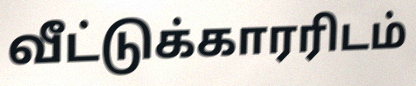
வீட்டுக்காரரிடம்